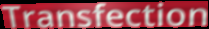
Transfection